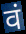
वं